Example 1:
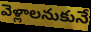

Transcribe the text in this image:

వెళ్లాలనుకునే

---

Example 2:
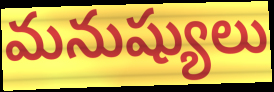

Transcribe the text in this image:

మనుష్యులు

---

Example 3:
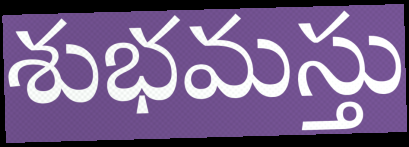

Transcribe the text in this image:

శుభమస్తు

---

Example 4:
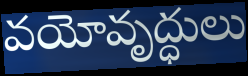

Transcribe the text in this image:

వయోవృద్ధులు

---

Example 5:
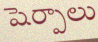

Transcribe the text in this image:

షెర్పాలు